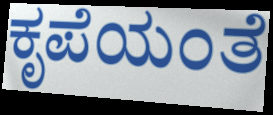
ಕೃಪೆಯಂತೆ